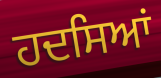
ਹਦਸਿਆਂ